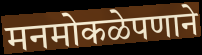
मनमोकळेपणाने